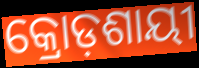
କ୍ରୋଡ଼ଶାୟୀ